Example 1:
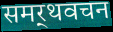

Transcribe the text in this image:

समर्थवचन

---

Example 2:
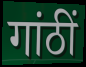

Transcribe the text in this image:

गांठीं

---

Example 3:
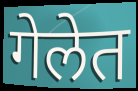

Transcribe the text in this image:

गेलेत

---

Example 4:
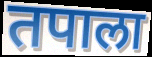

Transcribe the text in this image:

तपाला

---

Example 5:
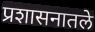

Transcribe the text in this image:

प्रशासनातले